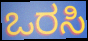
ಒರಸಿ